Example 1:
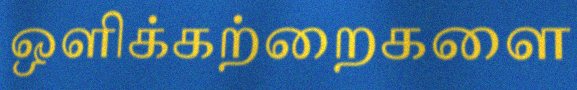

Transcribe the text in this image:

ஒளிக்கற்றைகளை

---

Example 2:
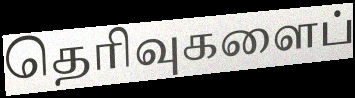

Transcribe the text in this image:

தெரிவுகளைப்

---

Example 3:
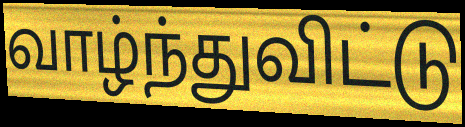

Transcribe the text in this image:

வாழ்ந்துவிட்டு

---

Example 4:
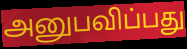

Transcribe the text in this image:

அனுபவிப்பது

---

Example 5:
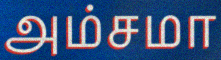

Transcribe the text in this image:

அம்சமா